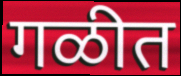
गळीत